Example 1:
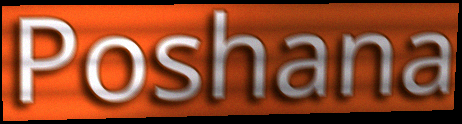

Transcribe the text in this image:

Poshana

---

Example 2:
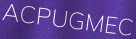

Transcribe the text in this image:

ACPUGMEC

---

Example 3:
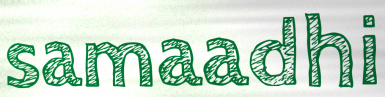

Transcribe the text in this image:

samaadhi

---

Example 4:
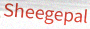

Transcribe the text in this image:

Sheegepal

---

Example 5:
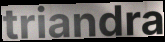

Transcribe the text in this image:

triandra